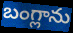
బంగ్లాను